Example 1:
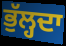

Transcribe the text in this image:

ਭੁੱਲ੍ਹਦਾ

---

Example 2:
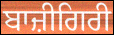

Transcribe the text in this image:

ਬਾਜ਼ੀਗਿਰੀ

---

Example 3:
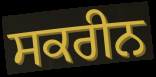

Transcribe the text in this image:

ਸਕਰੀਨ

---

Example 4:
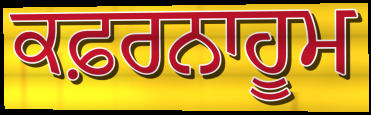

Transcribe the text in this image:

ਕਫ਼ਰਨਾਹੂਮ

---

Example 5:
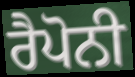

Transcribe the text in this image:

ਰੈਪੋਨੀ